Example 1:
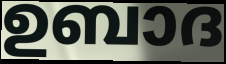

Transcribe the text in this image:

ഉബാദ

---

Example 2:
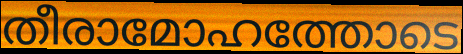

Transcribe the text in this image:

തീരാമോഹത്തോടെ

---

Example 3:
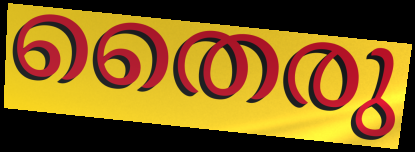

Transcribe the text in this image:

തൈരു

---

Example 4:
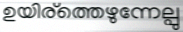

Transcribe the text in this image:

ഉയിര്ത്തെഴുന്നേല്പു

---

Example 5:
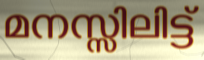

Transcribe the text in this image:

മനസ്സിലിട്ട്